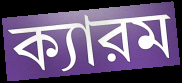
ক্যারম